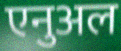
एनुअल